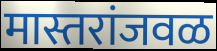
मास्तरांजवळ